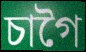
চাগৈ